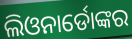
ଲିଓନାର୍ଡୋଙ୍କର